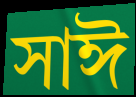
সাঈ